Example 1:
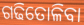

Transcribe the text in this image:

ଗଢିତୋଳିବା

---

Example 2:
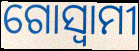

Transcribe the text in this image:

ଗୋସ୍ୱାମୀ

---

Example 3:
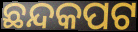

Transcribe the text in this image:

ଛନ୍ଦକପଟ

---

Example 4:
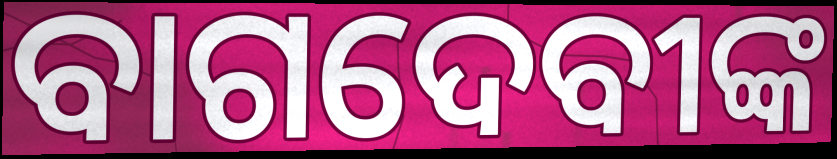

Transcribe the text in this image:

ବାଗଦେବୀଙ୍କ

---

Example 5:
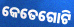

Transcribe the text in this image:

କେତେଗୋଟି